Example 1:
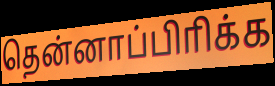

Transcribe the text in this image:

தென்னாப்பிரிக்க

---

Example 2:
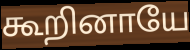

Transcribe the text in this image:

கூறினாயே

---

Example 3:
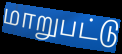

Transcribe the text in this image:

மாறுபட்டு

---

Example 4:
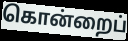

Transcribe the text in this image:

கொன்றைப்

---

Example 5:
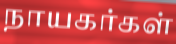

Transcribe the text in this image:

நாயகர்கள்